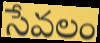
సేవలం